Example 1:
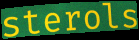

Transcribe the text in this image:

sterols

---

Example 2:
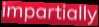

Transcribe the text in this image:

impartially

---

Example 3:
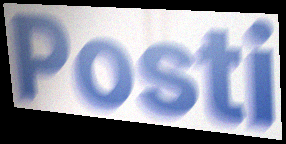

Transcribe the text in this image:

Posti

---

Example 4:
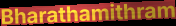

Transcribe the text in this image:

Bharathamithram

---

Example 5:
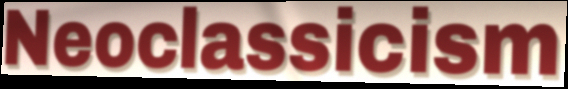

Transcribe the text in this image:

Neoclassicism